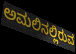
ಅಮಲಿನಲ್ಲಿರುವ